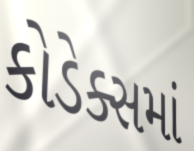
કોડેક્સમાં